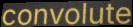
convolute